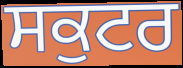
ਸਕੁਟਰ